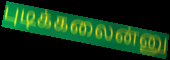
புடிக்கலைன்னு